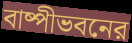
বাষ্পীভবনের